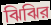
ঝিঝির